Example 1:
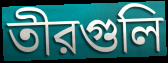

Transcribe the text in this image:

তীরগুলি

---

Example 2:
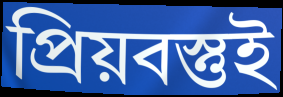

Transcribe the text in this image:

প্রিয়বস্তুই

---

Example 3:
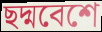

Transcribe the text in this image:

ছদ্মবেশে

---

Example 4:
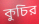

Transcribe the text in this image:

কুচির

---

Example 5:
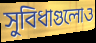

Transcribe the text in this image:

সুবিধাগুলোও